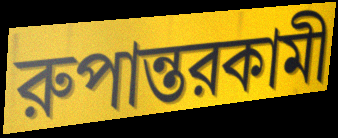
রুপান্তরকামী